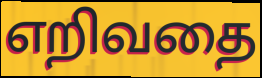
எறிவதை